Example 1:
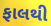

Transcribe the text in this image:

ફાલથી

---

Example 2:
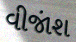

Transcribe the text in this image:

વીજાંશ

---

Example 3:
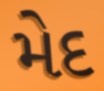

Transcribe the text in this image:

મેદ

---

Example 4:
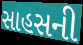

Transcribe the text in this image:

સાહસની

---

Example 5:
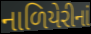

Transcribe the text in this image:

નાળિયેરીનાં